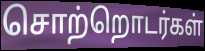
சொற்றொடர்கள்